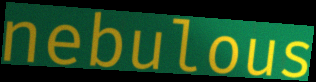
nebulous